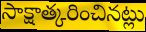
సాక్షాత్కరించినట్లు